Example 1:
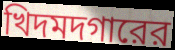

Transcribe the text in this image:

খিদমদগারের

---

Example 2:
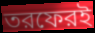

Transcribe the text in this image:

তরফেরই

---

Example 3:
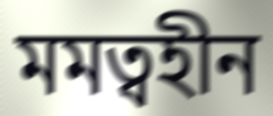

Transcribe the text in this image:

মমত্বহীন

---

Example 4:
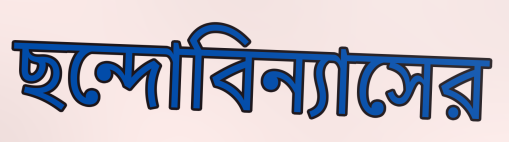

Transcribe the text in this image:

ছন্দোবিন্যাসের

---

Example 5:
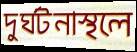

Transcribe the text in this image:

দুর্ঘটনাস্থলে